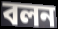
বলন